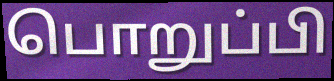
பொறுப்பி